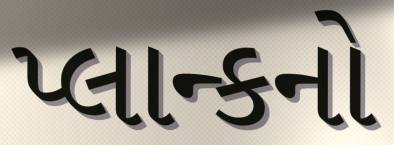
પ્લાન્કનો